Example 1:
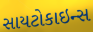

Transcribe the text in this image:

સાયટોકાઇન્સ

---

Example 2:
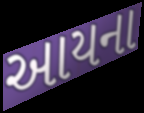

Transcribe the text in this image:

આયના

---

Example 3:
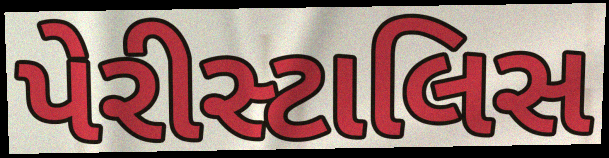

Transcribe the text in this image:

પેરીસ્ટાલિસ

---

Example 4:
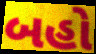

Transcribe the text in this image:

બહો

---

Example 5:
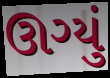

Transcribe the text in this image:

ઊગ્યું